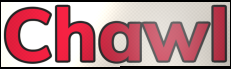
Chawl